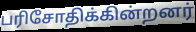
பரிசோதிக்கின்றனர்